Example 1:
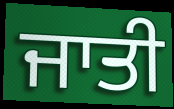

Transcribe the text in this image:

ਜਾਤੀ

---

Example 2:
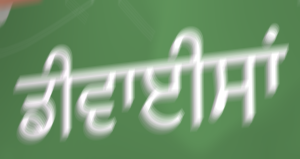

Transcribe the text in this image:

ਡੀਵਾਈਸਾਂ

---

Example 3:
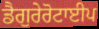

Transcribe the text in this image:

ਡੈਗੁਰੇਰੋਟਾਈਪ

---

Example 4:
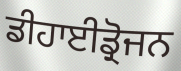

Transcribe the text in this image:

ਡੀਹਾਈਡ੍ਰੋਜਨ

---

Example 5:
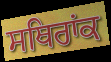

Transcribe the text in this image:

ਸਥਿਰਾਂਕ